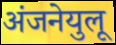
अंजनेयुलू